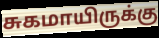
சுகமாயிருக்கு